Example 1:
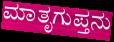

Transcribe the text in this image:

ಮಾತೃಗುಪ್ತನು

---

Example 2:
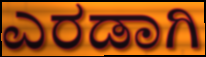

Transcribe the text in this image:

ಎರಡಾಗಿ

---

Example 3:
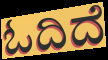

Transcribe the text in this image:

ಓದಿದೆ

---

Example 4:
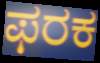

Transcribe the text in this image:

ಫರಕ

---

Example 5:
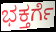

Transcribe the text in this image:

ಭಕ್ತರ್ಗೆ